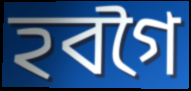
হবগৈ